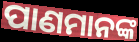
ପାଣମାନଙ୍କ